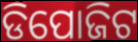
ଡିପୋଜିଟ